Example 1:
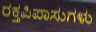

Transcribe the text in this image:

ರಕ್ತಪಿಪಾಸುಗಳು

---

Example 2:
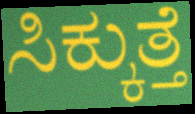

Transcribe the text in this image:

ಸಿಕ್ಕುತ್ತೆ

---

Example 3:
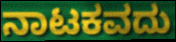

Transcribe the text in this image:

ನಾಟಕವದು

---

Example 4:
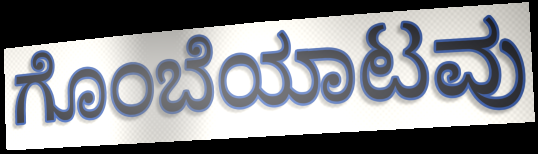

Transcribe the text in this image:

ಗೊಂಬೆಯಾಟವು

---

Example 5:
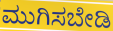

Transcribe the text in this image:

ಮುಗಿಸಬೇಡಿ